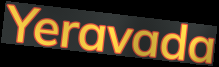
Yeravada